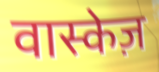
वास्केज़